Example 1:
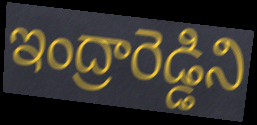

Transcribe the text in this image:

ఇంద్రారెడ్డిని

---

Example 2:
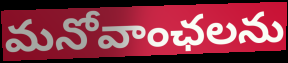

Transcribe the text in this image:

మనోవాంఛలను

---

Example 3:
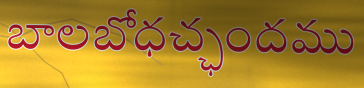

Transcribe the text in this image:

బాలబోధచ్ఛందము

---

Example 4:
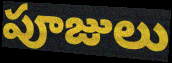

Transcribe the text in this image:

పూజులు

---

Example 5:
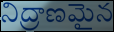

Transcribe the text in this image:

నిద్రాణమైన